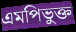
এমপিভুক্ত